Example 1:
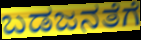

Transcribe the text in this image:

ಬಡಜನತೆಗೆ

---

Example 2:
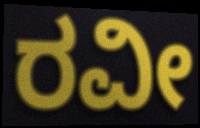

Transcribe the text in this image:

ರವೀ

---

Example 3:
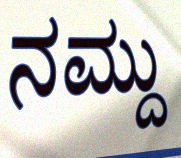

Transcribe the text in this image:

ನಮ್ದು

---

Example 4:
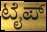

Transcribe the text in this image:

ಟೈಪ್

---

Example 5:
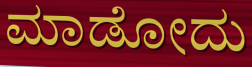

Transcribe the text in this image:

ಮಾಡೋದು